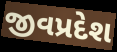
જીવપ્રદેશ